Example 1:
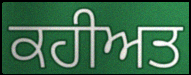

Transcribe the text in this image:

ਕਹੀਅਤ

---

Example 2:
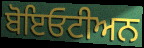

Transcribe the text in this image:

ਬੋਇਓਟੀਅਨ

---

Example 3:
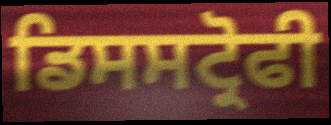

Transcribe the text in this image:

ਡਿਸਸਟ੍ਰੋਫੀ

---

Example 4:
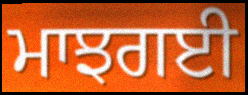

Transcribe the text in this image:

ਮਾਝਗਈ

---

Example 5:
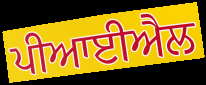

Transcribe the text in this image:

ਪੀਆਈਐਲ